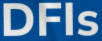
DFIs